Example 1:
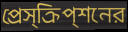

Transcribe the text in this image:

প্রেস্‌ক্রিপ্‌শনের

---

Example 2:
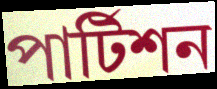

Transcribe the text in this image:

পার্টিশন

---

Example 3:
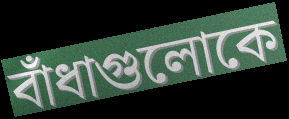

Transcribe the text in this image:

বাঁধাগুলোকে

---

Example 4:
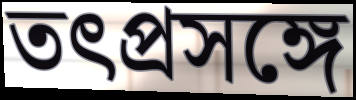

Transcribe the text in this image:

তৎপ্রসঙ্গে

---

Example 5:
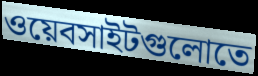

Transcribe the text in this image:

ওয়েবসাইটগুলোতে